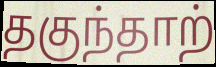
தகுந்தாற்